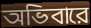
অভিবারে